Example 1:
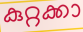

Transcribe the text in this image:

കുറ്റക്കാ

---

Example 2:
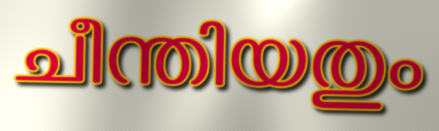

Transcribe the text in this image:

ചീന്തിയതും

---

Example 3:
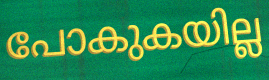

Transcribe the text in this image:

പോകുകയില്ല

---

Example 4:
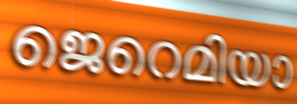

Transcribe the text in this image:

ജെറെമിയാ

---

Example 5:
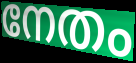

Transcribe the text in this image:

നേതം